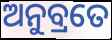
ଅନୁବ୍ରତେ